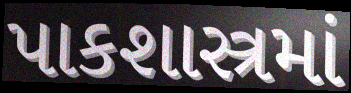
પાકશાસ્ત્રમાં